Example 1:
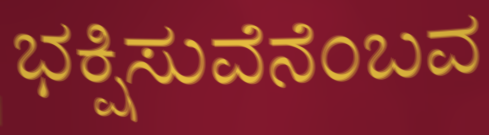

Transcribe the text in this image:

ಭಕ್ಷಿಸುವೆನೆಂಬವ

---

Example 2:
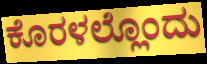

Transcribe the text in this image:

ಕೊರಳಲ್ಲೊಂದು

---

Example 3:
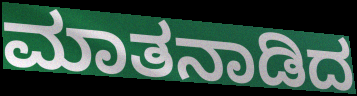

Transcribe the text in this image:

ಮಾತನಾಡಿದ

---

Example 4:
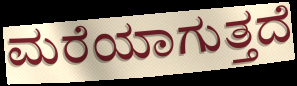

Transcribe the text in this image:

ಮರೆಯಾಗುತ್ತದೆ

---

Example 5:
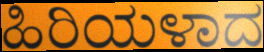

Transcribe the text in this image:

ಹಿರಿಯಳಾದ